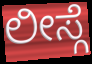
ಲೀಸ್ಗೆ